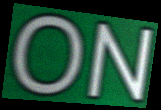
ON